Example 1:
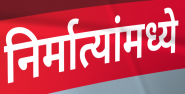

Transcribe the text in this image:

निर्मात्यांमध्ये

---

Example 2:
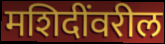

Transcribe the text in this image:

मशिदींवरील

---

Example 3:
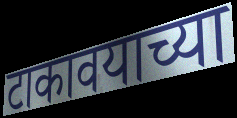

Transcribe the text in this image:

टाकावयाच्या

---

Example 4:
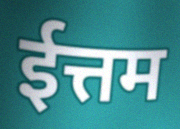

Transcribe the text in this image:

ईत्तम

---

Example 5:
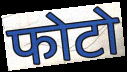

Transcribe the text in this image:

फोटो